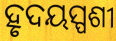
ହୃଦୟସ୍ପଶୀ